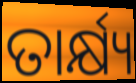
ତାର୍କ୍ଷ୍ୟ